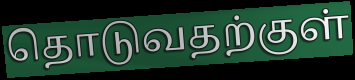
தொடுவதற்குள்